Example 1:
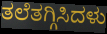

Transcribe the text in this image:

ತಲೆತಗ್ಗಿಸಿದಳು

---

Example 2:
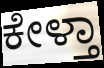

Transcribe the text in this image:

ಕೇಳ್ತಾ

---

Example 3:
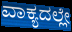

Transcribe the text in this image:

ವಾಕ್ಯದಲ್ಲೇ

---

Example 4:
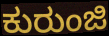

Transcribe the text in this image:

ಕುರುಂಜಿ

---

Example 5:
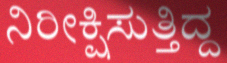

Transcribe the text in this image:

ನಿರೀಕ್ಷಿಸುತ್ತಿದ್ದ